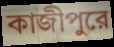
কাজীপুরে